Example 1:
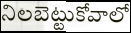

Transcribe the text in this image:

నిలబెట్టుకోవాలో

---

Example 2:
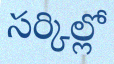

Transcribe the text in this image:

సర్కిల్లో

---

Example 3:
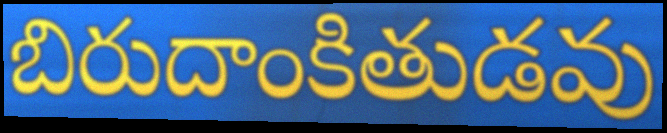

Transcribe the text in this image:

బిరుదాంకితుడవు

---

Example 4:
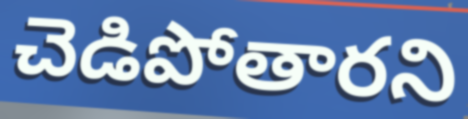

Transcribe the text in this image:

చెడిపోతారని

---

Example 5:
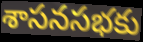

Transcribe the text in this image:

శాసనసభకు